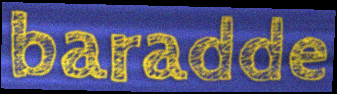
baradde